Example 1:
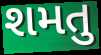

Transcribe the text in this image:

શમતુ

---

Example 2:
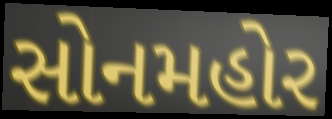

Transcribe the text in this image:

સોનમહોર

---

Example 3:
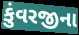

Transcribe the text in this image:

કુંવરજીના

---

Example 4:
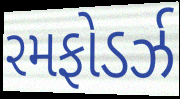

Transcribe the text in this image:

રમફોડર્ઝ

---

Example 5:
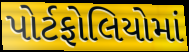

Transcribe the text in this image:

પોર્ટફોલિયોમાં